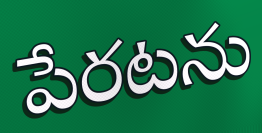
పేరటను